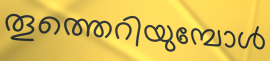
തൂത്തെറിയുമ്പോൾ